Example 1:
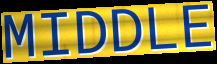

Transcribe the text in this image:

MIDDLE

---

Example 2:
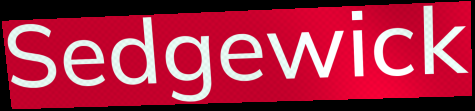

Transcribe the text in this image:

Sedgewick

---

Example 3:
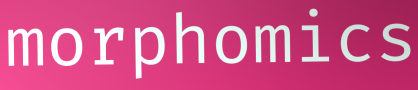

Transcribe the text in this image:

morphomics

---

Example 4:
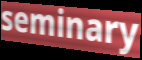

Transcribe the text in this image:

seminary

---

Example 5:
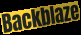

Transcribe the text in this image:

Backblaze